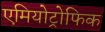
एमियोट्रोफिक